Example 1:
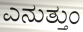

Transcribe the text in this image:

ಎನುತ್ತುಂ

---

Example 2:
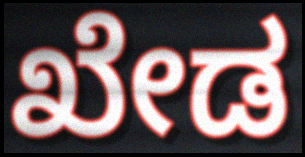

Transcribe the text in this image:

ಖೇಡ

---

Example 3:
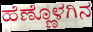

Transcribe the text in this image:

ಹೆಣ್ಣೊಳಗಿನ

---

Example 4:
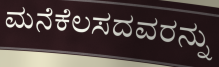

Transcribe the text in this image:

ಮನೆಕೆಲಸದವರನ್ನು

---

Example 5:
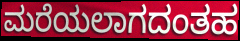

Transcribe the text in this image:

ಮರೆಯಲಾಗದಂತಹ